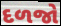
દળજો